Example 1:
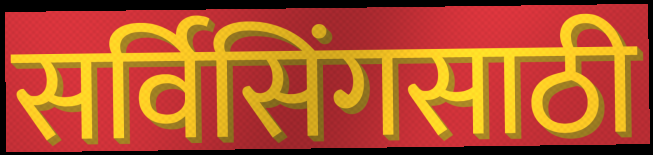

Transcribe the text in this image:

सर्विसिंगसाठी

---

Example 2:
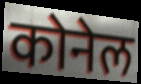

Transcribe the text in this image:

कोनेल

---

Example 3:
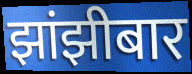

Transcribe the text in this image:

झांझीबार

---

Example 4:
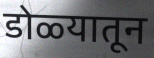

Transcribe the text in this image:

डोळ्यातून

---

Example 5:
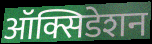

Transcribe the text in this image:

ऑक्सिडेशन